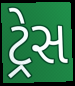
ટ્રેસ